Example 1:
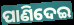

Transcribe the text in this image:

ପାଣିଦେଇ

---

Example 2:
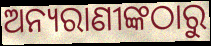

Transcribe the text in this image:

ଅନ୍ୟରାଣୀଙ୍କଠାରୁ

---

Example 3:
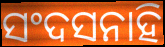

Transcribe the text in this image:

ସଂଦସନାହି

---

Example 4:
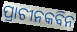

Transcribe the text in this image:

ପ୍ରାଚୀନକବିନ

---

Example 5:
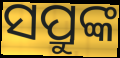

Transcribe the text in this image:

ସପ୍ରୁଙ୍କ